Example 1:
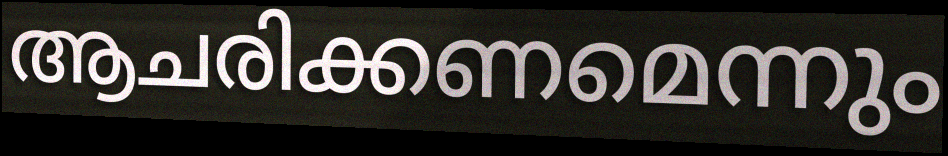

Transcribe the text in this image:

ആചരിക്കണമെന്നും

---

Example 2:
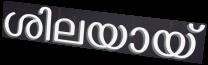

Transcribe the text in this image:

ശിലയായ്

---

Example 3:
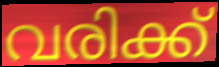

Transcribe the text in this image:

വരിക്ക്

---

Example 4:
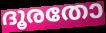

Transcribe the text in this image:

ദൂരതോ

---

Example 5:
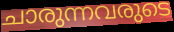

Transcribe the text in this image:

ചാരുന്നവരുടെ